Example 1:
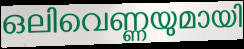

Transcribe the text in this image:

ഒലിവെണ്ണയുമായി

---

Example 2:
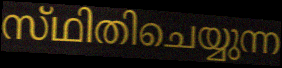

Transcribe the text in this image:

സ്‌ഥിതിചെയ്യുന്ന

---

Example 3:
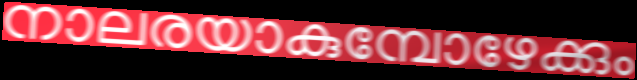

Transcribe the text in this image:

നാലരയാകുമ്പോഴേക്കും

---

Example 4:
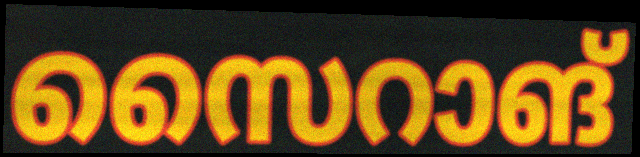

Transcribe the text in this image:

സൈറാങ്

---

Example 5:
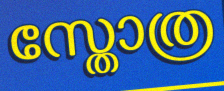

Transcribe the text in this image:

സ്തോത്ര